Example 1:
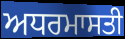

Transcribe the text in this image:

ਅਧਰਮਾਸਤੀ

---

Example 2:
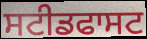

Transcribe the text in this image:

ਸਟੀਡਫਾਸਟ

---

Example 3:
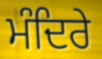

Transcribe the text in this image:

ਮੰਦਿਰੇ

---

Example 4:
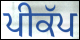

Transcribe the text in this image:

ਪੀਕੱਪ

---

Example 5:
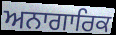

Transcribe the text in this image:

ਅਨਾਗਾਰਿਕ